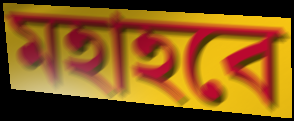
মহাহবে